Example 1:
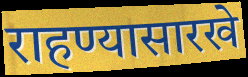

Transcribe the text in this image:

राहण्यासारखे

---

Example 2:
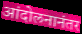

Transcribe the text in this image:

आंदोलनानंतर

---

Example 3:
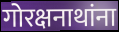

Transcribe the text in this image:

गोरक्षनाथांना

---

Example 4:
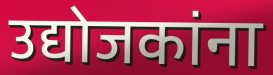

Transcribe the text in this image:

उद्योजकांना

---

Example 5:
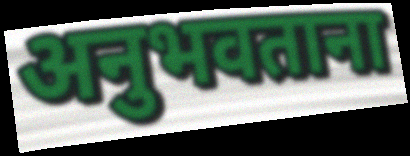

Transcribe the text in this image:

अनुभवताना